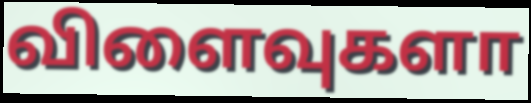
விளைவுகளா